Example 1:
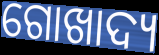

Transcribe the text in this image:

ଗୋଖାଦ୍ୟ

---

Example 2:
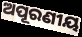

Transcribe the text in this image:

ଅପୂରଣୀୟ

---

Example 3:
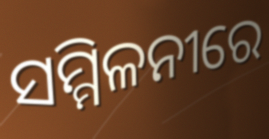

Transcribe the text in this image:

ସମ୍ମିଳନୀରେ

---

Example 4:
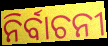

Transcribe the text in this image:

ନିର୍ବାଚନୀ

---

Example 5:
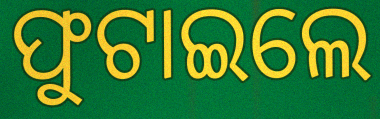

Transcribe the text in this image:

ଫୁଟାଇଲେ